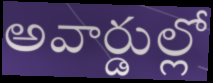
అవార్డుల్లో